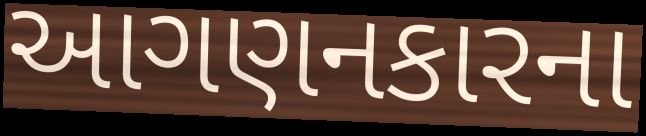
આગણનકારના